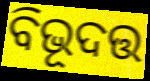
ବିଭୂଦତ୍ତ